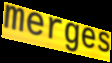
merges